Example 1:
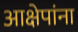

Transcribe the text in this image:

आक्षेपांना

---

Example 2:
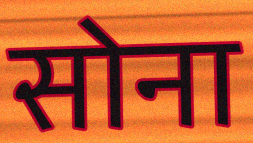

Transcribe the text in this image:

सोना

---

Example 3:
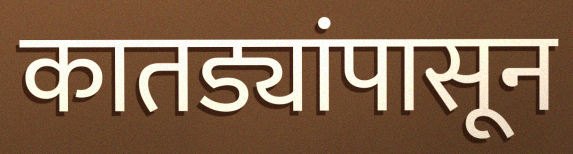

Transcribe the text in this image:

कातड्यांपासून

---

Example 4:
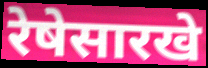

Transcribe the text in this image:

रेषेसारखे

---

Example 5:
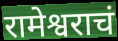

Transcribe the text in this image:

रामेश्वराचं